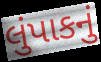
લુંપાકનું